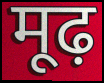
मूढ़